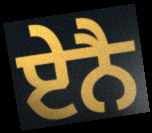
ਏਨੈ